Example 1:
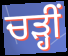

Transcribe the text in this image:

ਚੜ੍ਹੀਂ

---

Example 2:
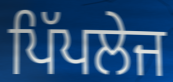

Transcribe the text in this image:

ਪਿੱਪਲੇਜ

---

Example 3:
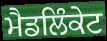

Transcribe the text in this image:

ਮੈਡਲਿੰਕੇਟ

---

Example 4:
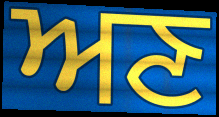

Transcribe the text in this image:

ਅਣ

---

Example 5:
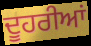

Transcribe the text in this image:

ਦੂਹਰੀਆਂ